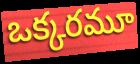
ఒక్కరమూ